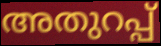
അതുറപ്പ്